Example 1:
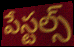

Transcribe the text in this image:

పేస్టల్స్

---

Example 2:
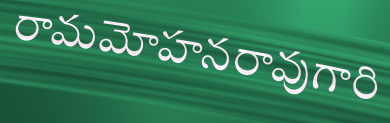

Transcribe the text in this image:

రామమోహనరావుగారి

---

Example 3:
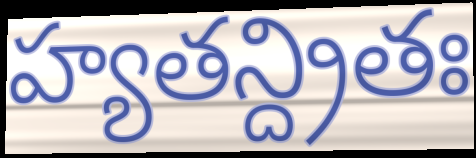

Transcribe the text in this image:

హ్యతన్ద్రితః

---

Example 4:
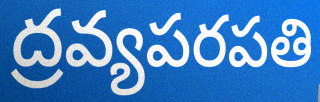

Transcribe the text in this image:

ద్రవ్యపరపతి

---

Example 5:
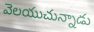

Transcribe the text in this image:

వెలయుచున్నాడు